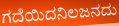
ಗದೆಯಿದನಿಲಜನದು